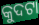
କୁଦଟା